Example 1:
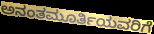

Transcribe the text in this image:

ಅನಂತಮೂರ್ತಿಯವರಿಗೆ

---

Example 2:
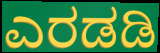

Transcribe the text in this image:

ಎರಡಡಿ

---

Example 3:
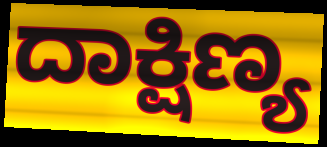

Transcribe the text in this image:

ದಾಕ್ಷಿಣ್ಯ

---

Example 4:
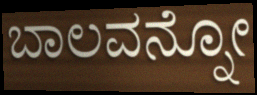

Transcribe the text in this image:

ಬಾಲವನ್ನೋ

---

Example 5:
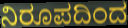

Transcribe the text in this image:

ನಿರೂಪದಿಂದ